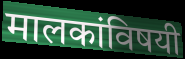
मालकांविषयी